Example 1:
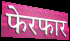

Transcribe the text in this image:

फेरफार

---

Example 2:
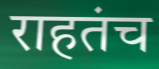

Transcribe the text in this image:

राहतंच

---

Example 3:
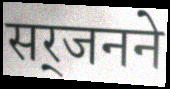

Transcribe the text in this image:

सर्जनने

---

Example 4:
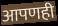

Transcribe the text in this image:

आपणही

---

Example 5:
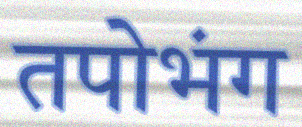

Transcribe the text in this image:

तपोभंग